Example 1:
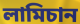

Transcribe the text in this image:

লামিচান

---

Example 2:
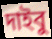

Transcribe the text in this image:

দাইবু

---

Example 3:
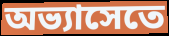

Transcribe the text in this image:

অভ্যাসেতে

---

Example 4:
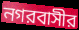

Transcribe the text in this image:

নগরবাসীর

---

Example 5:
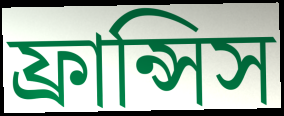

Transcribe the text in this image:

ফ্রান্সিস